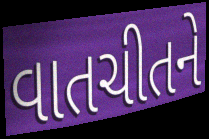
વાતચીતને